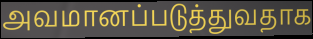
அவமானப்படுத்துவதாக